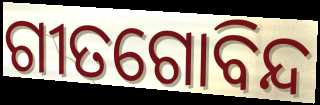
ଗୀତଗୋବିନ୍ଦ